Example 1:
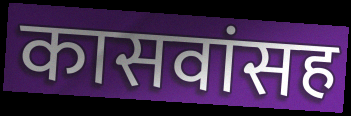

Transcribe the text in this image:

कासवांसह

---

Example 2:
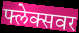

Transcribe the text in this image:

फ्लेक्सवर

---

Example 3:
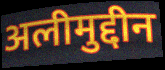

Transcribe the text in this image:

अलीमुद्दीन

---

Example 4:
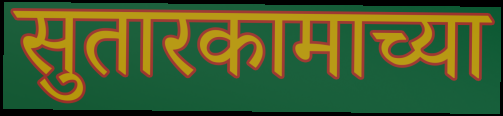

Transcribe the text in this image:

सुतारकामाच्या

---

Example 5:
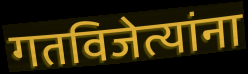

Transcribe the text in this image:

गतविजेत्यांना